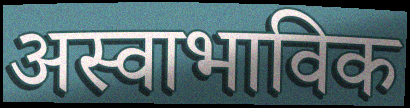
अस्वाभाविक